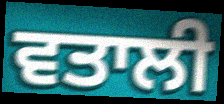
ਵਤਾਲੀ